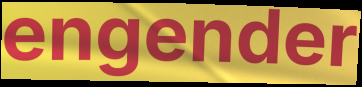
engender